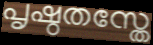
പൃഷ്ഠതസ്തേ